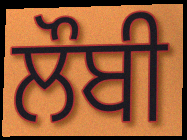
ਲੌਬੀ